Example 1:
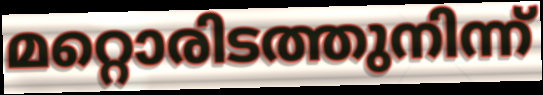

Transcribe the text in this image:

മറ്റൊരിടത്തുനിന്ന്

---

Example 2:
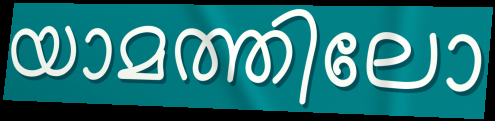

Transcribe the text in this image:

യാമത്തിലോ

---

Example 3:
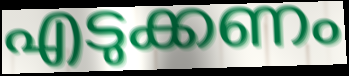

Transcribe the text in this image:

എടുക്കണം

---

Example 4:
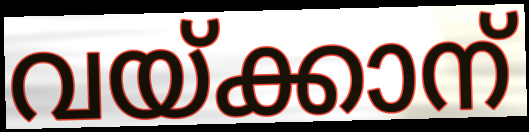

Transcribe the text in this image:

വയ്ക്കാന്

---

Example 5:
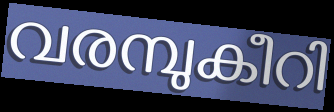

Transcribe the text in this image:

വരമ്പുകീറി